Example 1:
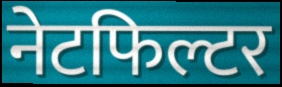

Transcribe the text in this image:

नेटफिल्टर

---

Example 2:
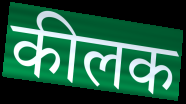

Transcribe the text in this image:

कीलक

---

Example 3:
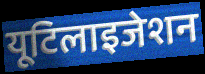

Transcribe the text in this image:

यूटिलाइजेशन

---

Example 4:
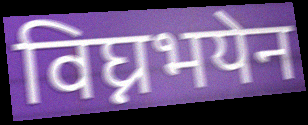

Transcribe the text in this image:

विघ्नभयेन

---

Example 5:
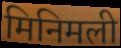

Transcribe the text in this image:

मिनिमली